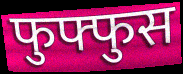
फुफ्फुस